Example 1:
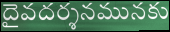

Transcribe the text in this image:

దైవదర్శనమునకు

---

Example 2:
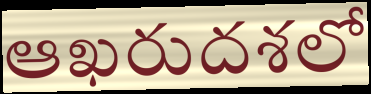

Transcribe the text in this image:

ఆఖరుదశలో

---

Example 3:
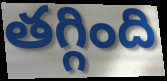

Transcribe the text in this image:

తగ్గింది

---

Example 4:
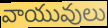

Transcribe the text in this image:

వాయువులు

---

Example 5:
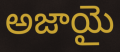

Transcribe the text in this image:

అజాయై